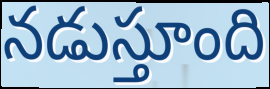
నడుస్తూంది